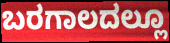
ಬರಗಾಲದಲ್ಲೂ